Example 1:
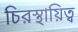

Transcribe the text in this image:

চিরস্থায়িত্ব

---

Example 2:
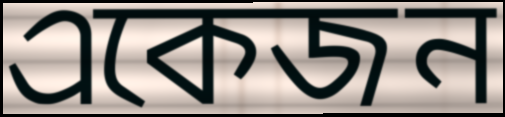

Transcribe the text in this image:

একেজন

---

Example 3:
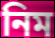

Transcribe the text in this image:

নিম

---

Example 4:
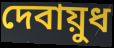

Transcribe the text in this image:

দেবায়ুধ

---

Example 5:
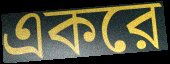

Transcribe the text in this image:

একরে